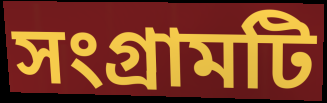
সংগ্রামটি